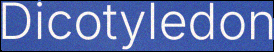
Dicotyledon